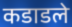
कडाडले